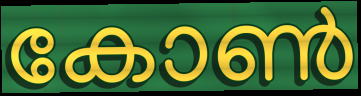
കോൺ